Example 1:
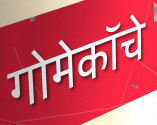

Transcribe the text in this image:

गोमेकॉचे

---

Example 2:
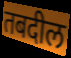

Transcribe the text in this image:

तबदील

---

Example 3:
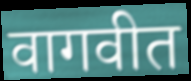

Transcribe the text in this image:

वागवीत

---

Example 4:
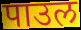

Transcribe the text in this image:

पाउल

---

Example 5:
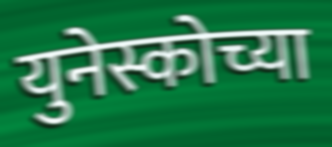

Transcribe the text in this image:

युनेस्कोच्या